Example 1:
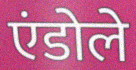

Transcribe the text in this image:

एंडोले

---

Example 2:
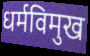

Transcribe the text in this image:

धर्मविमुख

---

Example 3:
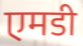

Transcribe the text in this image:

एमडी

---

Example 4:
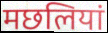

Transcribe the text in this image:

मछलियां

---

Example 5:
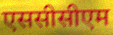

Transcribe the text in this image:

एससीसीएम